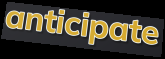
anticipate